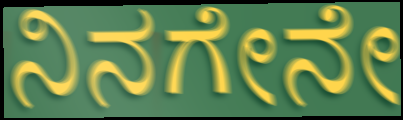
ನಿನಗೇನೇ